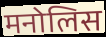
मनोलिस